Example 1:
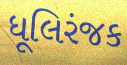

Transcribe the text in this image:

ધૂલિરંજક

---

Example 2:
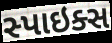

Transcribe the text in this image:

સ્પાઇક્સ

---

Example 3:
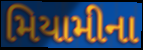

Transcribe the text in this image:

મિયામીના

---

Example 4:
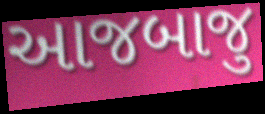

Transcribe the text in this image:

આજબાજુ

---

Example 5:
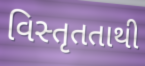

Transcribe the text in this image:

વિસ્તૃતતાથી